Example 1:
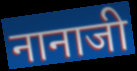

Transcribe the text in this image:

नानाजी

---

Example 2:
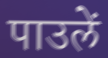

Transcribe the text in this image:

पाउलें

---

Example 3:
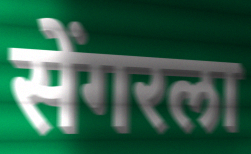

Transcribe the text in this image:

सेंगरला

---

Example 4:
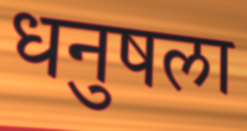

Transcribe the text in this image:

धनुषला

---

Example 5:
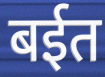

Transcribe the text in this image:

बईत